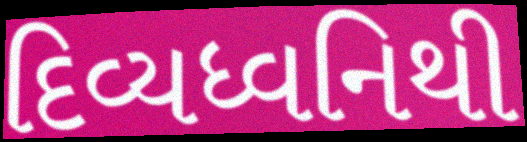
દિવ્યધ્વનિથી